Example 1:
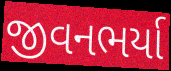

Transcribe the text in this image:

જીવનભર્યા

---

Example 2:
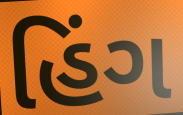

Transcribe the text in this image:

હિંગ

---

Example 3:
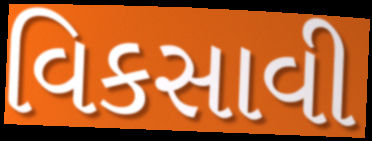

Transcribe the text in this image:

વિકસાવી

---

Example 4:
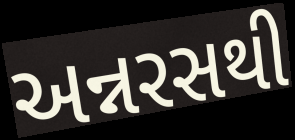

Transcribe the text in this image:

અન્નરસથી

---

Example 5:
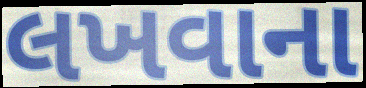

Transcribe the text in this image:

લખવાના